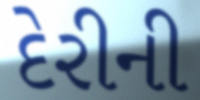
દેરીની